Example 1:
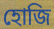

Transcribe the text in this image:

হোজি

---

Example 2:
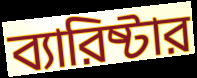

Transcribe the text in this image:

ব্যারিষ্টার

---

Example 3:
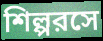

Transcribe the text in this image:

শিল্পরসে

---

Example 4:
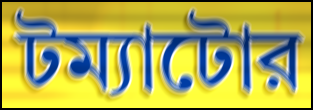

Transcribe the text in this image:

টম্যাটোর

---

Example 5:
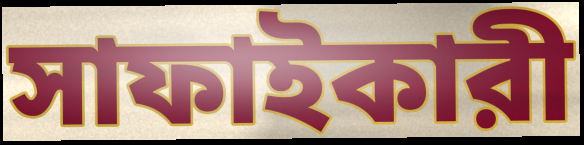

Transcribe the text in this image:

সাফাইকারী